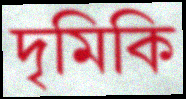
দৃমিকি